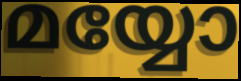
മയ്യോ